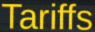
Tariffs